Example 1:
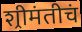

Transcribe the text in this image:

श्रीमंतीचं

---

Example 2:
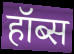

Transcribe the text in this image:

हॉब्स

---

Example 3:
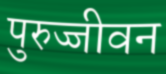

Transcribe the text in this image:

पुरुज्जीवन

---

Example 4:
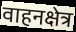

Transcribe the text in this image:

वाहनक्षेत्र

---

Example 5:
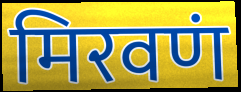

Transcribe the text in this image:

मिरवणं